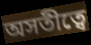
অসতীত্বে